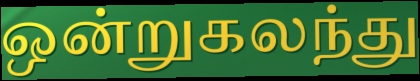
ஒன்றுகலந்து